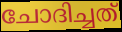
ചോദിച്ചത്